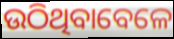
ଉଠିଥିବାବେଳେ